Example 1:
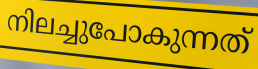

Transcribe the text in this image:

നിലച്ചുപോകുന്നത്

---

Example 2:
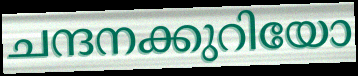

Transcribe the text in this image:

ചന്ദനക്കുറിയോ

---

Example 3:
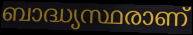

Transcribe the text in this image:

ബാദ്ധ്യസ്ഥരാണ്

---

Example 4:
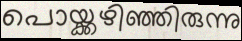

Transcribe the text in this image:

പൊയ്ക്കഴിഞ്ഞിരുന്നു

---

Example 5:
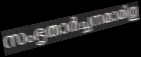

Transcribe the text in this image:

സംഭൃതാർച്ചനമാമിതു